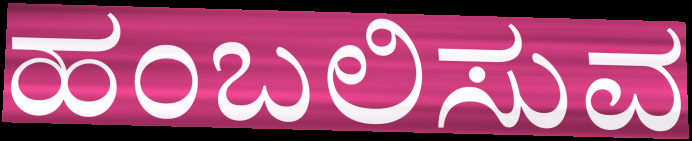
ಹಂಬಲಿಸುವ